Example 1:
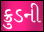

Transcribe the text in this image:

ક્રુડની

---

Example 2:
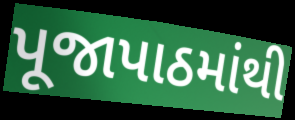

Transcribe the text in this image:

પૂજાપાઠમાંથી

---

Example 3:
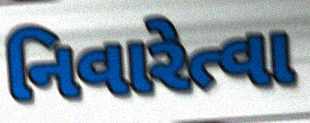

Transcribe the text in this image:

નિવારેત્વા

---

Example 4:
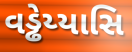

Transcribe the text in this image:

વડ્ઢેય્યાસિ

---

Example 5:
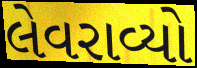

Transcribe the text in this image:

લેવરાવ્યો